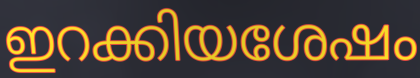
ഇറക്കിയശേഷം